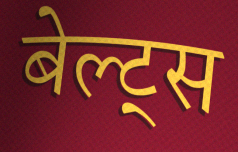
बेल्ट्स